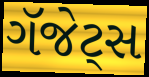
ગૅજેટ્સ